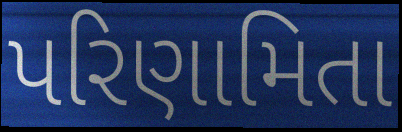
પરિણામિતા